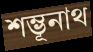
শম্ভূনাথ